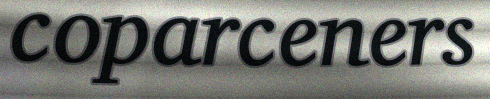
coparceners